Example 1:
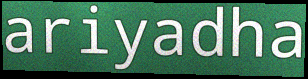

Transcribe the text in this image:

ariyadha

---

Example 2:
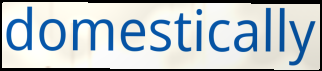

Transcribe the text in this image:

domestically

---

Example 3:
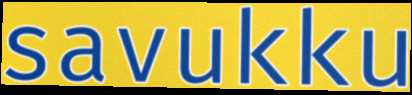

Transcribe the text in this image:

savukku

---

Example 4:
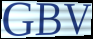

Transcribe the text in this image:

GBV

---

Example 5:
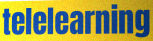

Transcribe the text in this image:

telelearning